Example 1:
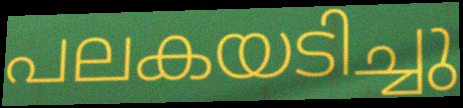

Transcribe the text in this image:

പലകയടിച്ചു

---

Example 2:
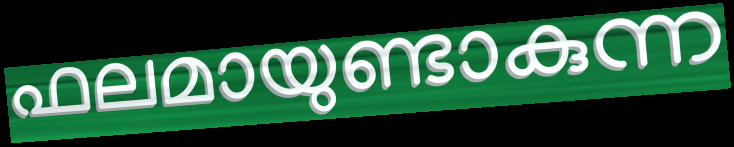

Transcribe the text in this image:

ഫലമായുണ്ടാകുന്ന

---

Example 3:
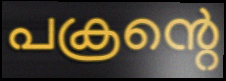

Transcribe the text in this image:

പക്രന്റെ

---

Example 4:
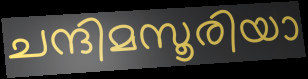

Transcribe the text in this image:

ചന്ദിമസൂരിയാ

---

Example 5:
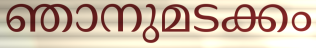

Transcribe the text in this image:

ഞാനുമടക്കം